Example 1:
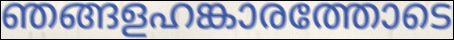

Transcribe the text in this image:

ഞങ്ങളഹങ്കാരത്തോടെ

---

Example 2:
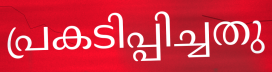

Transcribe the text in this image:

പ്രകടിപ്പിച്ചതു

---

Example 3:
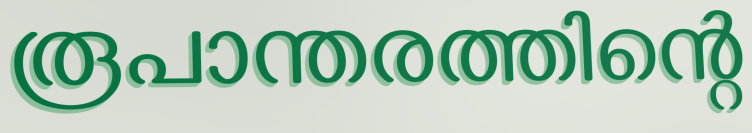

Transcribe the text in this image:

രൂപാന്തരത്തിന്റെ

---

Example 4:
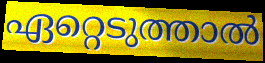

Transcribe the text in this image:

ഏറ്റെടുത്താൽ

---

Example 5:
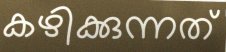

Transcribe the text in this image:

കഴിക്കുന്നത്